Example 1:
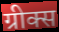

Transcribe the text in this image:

ग्रीक्स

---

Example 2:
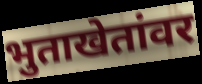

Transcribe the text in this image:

भुताखेतांवर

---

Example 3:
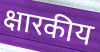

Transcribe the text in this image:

क्षारकीय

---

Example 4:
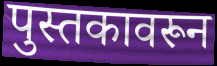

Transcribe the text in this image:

पुस्तकावरून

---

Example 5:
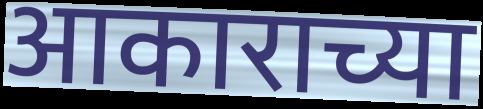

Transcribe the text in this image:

आकाराच्या